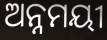
ଅନ୍ନମୟୀ